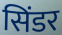
सिंडर